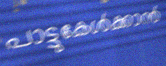
പാട്ടുകേൾക്കാൻ